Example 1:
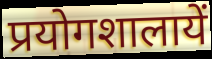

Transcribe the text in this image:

प्रयोगशालायें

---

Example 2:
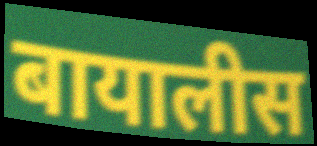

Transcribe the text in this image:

बायालीस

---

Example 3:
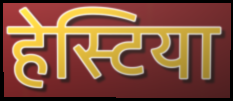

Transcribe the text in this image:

हेस्टिया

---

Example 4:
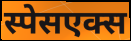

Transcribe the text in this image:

स्पेसएक्स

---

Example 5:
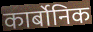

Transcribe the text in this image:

कार्बोनिक